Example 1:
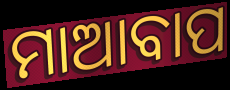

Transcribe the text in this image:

ମାଆବାପ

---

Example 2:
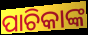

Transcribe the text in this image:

ପାଚିକାଙ୍କ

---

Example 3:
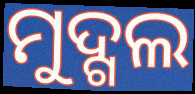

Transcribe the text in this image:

ମୁଦ୍ଗଲ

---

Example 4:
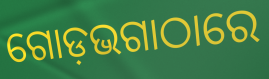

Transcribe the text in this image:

ଗୋଡ଼ଭଗାଠାରେ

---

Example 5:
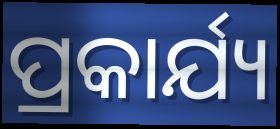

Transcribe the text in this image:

ପ୍ରକାର୍ଯ୍ୟ